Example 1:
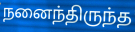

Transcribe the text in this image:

நனைந்திருந்த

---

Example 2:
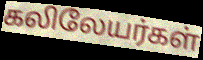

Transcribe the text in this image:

கலிலேயர்கள்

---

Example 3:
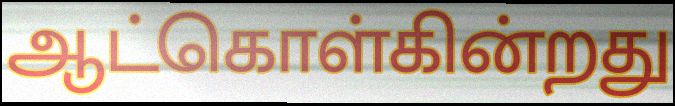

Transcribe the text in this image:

ஆட்கொள்கின்றது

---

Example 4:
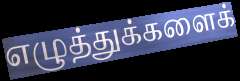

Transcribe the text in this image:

எழுத்துக்களைக்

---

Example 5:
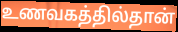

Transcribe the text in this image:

உணவகத்தில்தான்